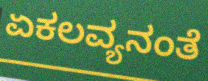
ಏಕಲವ್ಯನಂತೆ